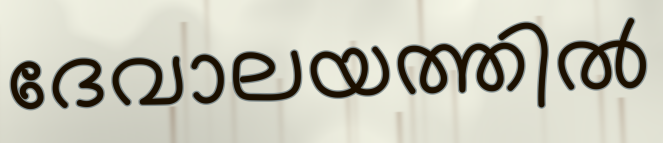
ദേവാലയത്തിൽ